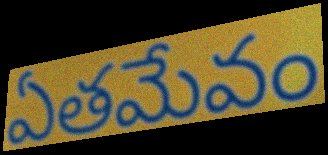
ఏతమేవం